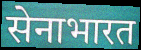
सेनाभारत